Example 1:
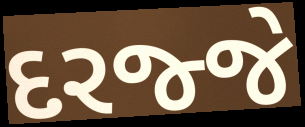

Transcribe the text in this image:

દરજ્જે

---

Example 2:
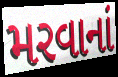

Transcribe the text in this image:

મરવાનાં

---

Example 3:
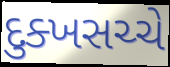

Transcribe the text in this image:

દુક્ખસચ્ચે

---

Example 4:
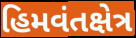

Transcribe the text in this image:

હિમવંતક્ષેત્ર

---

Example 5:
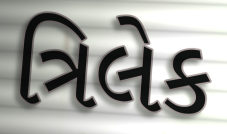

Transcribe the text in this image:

ત્રિલેક